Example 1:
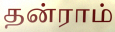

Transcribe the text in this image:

தன்ராம்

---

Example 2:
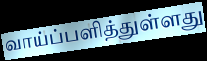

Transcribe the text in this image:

வாய்ப்பளித்துள்ளது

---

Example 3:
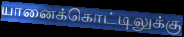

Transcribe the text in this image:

யானைக்கொட்டிலுக்கு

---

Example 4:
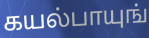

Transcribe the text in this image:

கயல்பாயுங்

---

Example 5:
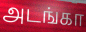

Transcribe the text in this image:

அடங்கா